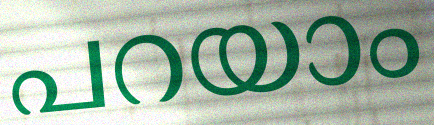
പറയാം